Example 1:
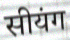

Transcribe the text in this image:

सीयंग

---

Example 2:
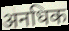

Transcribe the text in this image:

अनधिक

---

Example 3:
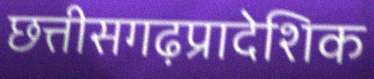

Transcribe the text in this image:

छत्तीसगढ़प्रादेशिक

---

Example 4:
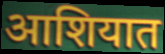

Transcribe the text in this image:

आशियात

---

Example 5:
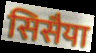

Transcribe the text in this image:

सिसैया